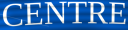
CENTRE